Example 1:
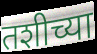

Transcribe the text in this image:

तशीच्या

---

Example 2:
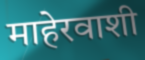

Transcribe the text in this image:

माहेरवाशी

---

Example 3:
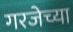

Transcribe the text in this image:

गरजेच्या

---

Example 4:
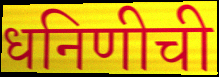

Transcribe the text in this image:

धनिणीची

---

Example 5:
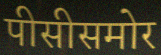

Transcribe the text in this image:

पीसीसमोर